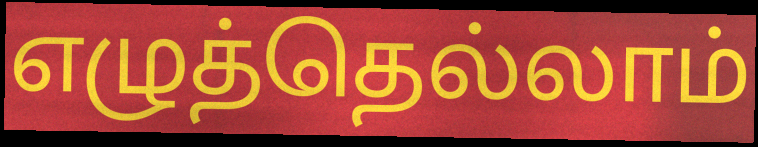
எழுத்தெல்லாம்